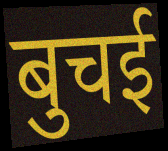
बुचई